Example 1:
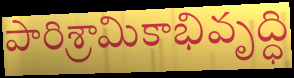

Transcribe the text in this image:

పారిశ్రామికాభివృద్ధి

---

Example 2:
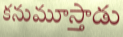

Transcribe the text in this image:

కనుమూస్తాడు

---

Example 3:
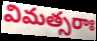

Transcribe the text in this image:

విమత్సరాః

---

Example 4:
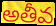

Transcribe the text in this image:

అతీవ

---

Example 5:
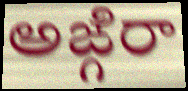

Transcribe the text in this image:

అఙ్గిరా